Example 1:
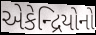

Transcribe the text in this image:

એકેન્દ્રિયોનો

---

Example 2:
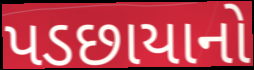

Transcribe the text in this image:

પડછાયાનો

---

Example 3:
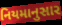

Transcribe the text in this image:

નિયમાનુસાર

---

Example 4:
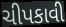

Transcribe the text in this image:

ચીપકાવી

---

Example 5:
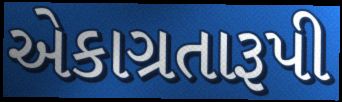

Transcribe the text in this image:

એકાગ્રતારૂપી